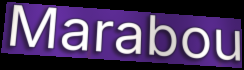
Marabou